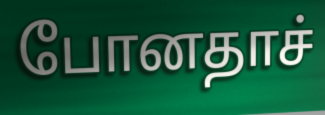
போனதாச்